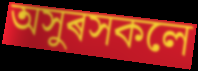
অসুৰসকলে